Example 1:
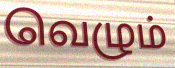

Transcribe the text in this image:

வெழும்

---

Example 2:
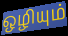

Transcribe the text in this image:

ஒழியும்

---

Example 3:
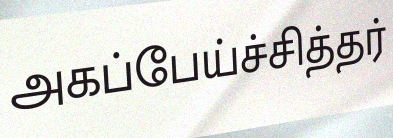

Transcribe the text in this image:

அகப்பேய்ச்சித்தர்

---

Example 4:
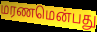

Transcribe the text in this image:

மரணமென்பது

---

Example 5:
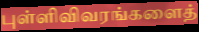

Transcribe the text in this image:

புள்ளிவிவரங்களைத்